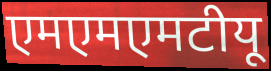
एमएमएमटीयू